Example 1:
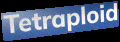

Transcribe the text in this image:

Tetraploid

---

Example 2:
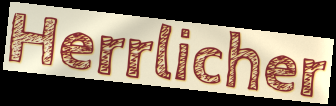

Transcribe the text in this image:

Herrlicher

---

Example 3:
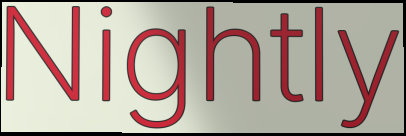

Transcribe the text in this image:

Nightly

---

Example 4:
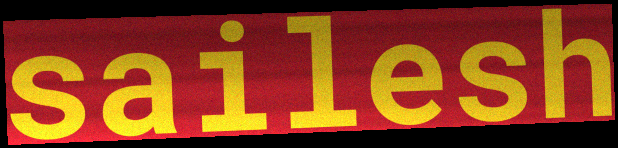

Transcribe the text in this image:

sailesh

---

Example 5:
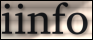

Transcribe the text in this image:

iinfo